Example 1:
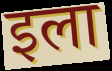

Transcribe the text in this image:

इला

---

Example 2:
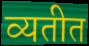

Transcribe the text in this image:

व्यतीत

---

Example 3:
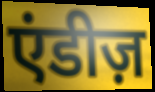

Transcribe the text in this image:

एंडीज़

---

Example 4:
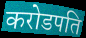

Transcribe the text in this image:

करोडपति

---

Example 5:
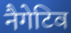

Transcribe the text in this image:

नैगेटिव